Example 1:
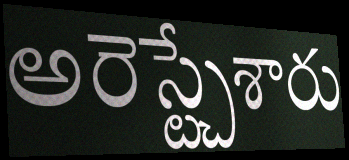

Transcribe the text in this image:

అరెస్ట్చేశారు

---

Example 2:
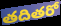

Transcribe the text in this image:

తదితరో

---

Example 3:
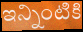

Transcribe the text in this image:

ఇన్నింటికి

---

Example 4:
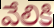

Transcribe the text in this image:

వేలికి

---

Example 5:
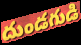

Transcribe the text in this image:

దుండగుడి